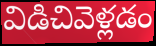
విడిచివెళ్లడం